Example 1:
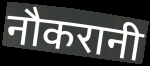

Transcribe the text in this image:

नौकरानी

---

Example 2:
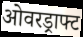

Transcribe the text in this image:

ओवरड्राफ्ट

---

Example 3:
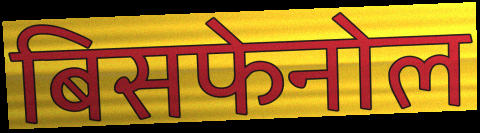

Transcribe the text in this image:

बिसफेनोल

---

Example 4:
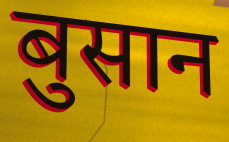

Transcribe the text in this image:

बुसान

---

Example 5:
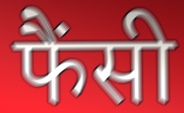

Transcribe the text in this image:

फैंसी